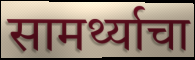
सामर्थ्याचा